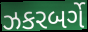
ઝકરબર્ગે